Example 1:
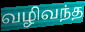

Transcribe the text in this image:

வழிவந்த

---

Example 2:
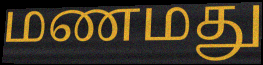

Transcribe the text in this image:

மணமது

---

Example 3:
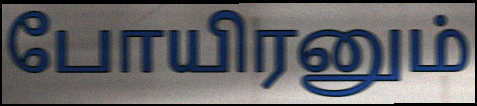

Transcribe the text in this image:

போயிரனும்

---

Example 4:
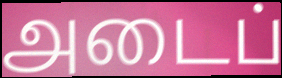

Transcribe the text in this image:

அடைப்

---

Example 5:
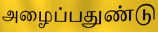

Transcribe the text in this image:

அழைப்பதுண்டு